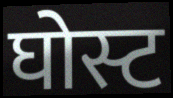
घोस्‍ट